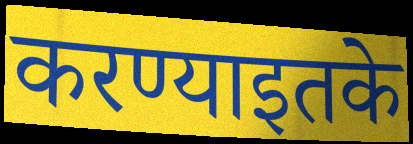
करण्याइतके